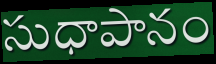
సుధాపానం